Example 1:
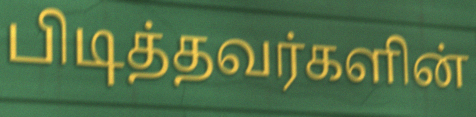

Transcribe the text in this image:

பிடித்தவர்களின்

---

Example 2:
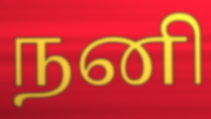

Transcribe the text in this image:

நனி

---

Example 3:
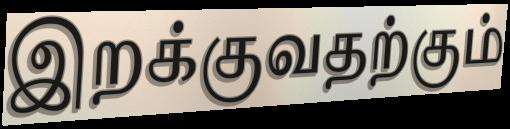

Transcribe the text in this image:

இறக்குவதற்கும்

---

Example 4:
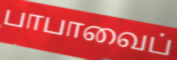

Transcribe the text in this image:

பாபாவைப்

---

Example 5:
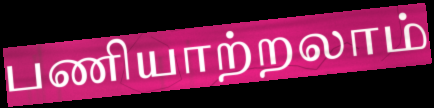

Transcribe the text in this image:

பணியாற்றலாம்